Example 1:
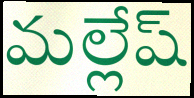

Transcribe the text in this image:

మల్లేష్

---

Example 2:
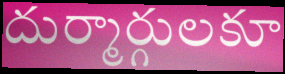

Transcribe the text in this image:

దుర్మార్గులకూ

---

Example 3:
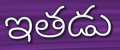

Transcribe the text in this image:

ఇతడు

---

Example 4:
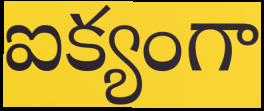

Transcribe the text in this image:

ఐక్యంగా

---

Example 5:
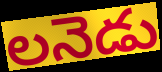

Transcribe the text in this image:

లనెడు